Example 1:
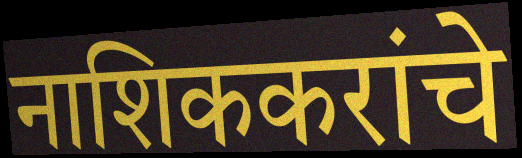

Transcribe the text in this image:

नाशिककरांचे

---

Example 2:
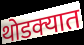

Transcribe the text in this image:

थोडक्‍यात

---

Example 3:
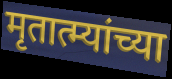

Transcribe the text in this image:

मृतात्म्यांच्या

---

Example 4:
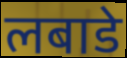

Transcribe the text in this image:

लबाडे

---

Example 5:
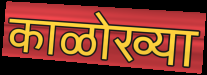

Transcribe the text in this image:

काळोख्या